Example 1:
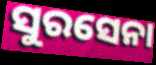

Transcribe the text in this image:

ସୁରସେନା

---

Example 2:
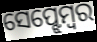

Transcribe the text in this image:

ସେପ୍ଝେମ୍ବର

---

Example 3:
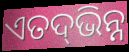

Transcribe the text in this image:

ଏତଦ୍‌ଭିନ୍ନ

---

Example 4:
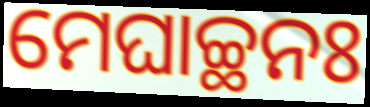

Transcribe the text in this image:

ମେଘାଚ୍ଛନଃ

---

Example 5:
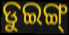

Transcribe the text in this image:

ଡୁଇଙ୍ଗ୍